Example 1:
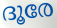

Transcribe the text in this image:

ദൂരേ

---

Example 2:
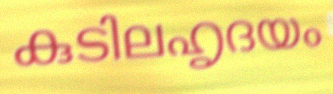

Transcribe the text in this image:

കുടിലഹൃദയം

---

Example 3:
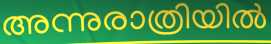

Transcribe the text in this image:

അന്നുരാത്രിയിൽ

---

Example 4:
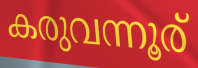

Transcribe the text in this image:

കരുവന്നൂര്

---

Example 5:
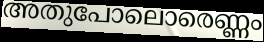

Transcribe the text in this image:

അതുപോലൊരെണ്ണം